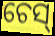
ଚେସ୍